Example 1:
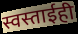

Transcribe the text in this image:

स्वस्ताईही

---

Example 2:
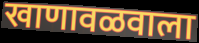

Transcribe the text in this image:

खाणावळवाला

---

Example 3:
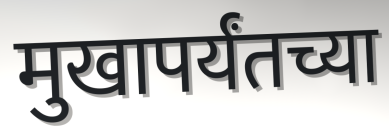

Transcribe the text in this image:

मुखापर्यंतच्या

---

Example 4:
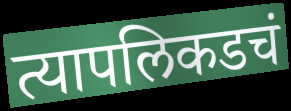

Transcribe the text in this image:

त्यापलिकडचं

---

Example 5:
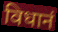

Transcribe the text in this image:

विधानं